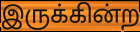
இருக்கின்ற